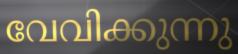
വേവിക്കുന്നു